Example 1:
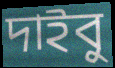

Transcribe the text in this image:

দাইবু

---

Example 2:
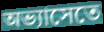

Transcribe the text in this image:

অভ্যাসেতে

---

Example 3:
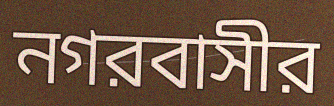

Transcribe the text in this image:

নগরবাসীর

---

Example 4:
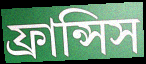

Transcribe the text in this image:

ফ্রান্সিস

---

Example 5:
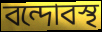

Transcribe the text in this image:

বন্দোবস্থ